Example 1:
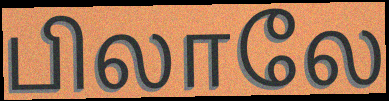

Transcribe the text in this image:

பிலாலே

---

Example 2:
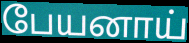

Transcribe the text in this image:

பேயனாய்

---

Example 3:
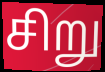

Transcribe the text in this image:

சிறு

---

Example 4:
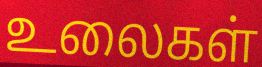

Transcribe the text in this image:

உலைகள்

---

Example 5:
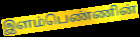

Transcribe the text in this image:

இளம்பெண்ணின்